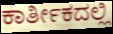
ಕಾರ್ತೀಕದಲ್ಲಿ